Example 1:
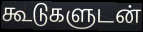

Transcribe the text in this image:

கூடுகளுடன்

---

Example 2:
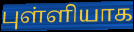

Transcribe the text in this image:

புள்ளியாக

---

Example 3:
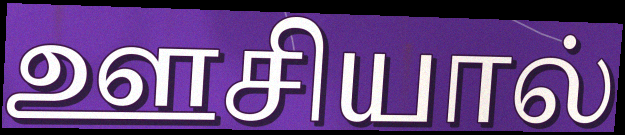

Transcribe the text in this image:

ஊசியால்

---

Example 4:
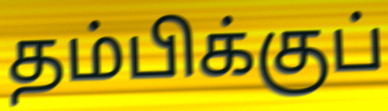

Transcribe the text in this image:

தம்பிக்குப்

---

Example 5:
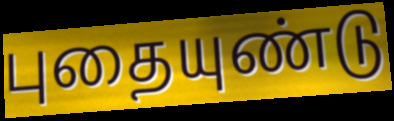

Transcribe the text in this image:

புதையுண்டு